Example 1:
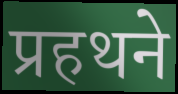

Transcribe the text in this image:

प्रहथने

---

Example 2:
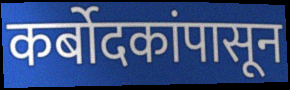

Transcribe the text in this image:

कर्बोदकांपासून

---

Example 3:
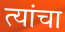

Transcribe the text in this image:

त्‍यांचा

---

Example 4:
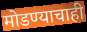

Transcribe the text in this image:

मोडण्याचाही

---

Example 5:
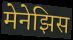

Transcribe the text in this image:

मेनेझिस